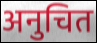
अनुचित